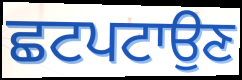
ਛਟਪਟਾਉਣ